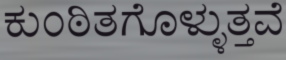
ಕುಂಠಿತಗೊಳ್ಳುತ್ತವೆ